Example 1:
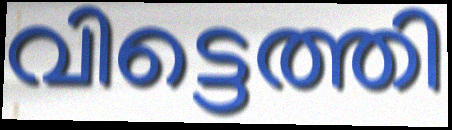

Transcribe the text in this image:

വിട്ടെത്തി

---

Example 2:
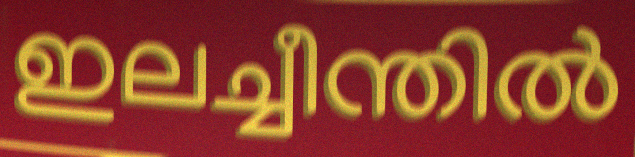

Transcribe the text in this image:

ഇലച്ചീന്തിൽ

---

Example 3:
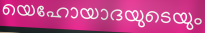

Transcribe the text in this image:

യെഹോയാദയുടെയും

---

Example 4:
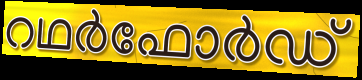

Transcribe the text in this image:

റഥർഫോർഡ്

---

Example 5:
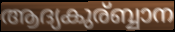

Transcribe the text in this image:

ആദ്യകുര്ബ്ബാന